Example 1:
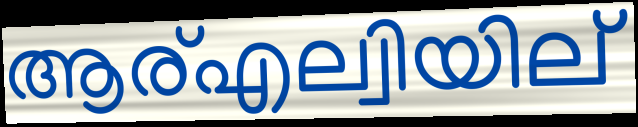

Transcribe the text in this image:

ആര്എല്വിയില്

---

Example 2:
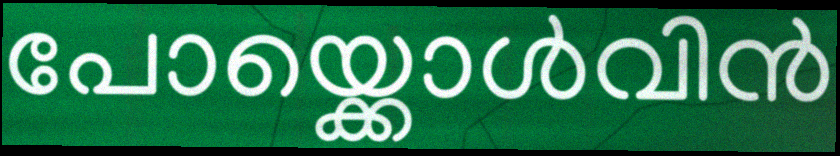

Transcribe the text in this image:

പോയ്ക്കൊൾവിൻ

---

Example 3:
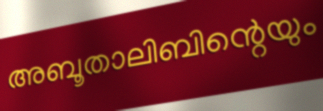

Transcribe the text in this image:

അബൂതാലിബിന്റെയും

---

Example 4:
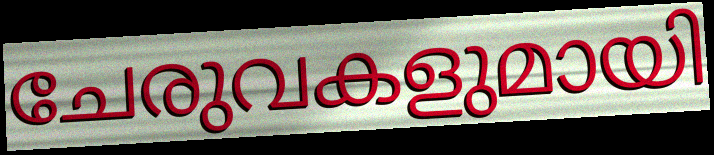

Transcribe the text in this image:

ചേരുവകളുമായി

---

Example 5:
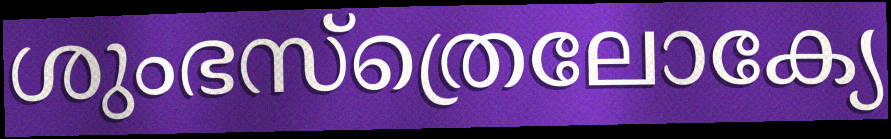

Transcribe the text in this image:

ശുംഭസ്ത്രെലോക്യേ